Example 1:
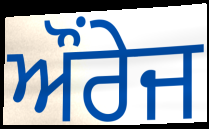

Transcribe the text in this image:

ਔਂਰੇਜ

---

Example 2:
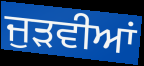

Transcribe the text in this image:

ਜੁੜਵੀਆਂ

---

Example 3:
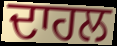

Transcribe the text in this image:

ਦਾਹਲ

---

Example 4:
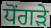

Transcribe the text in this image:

ਧੋਂਗੜੇ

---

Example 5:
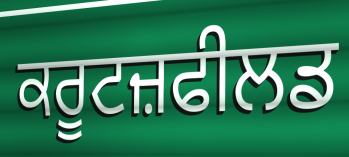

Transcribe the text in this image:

ਕਰੂਟਜ਼ਫੀਲਡ